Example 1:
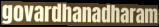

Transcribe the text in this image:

govardhanadharam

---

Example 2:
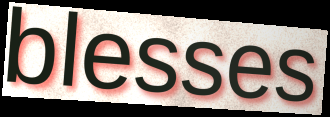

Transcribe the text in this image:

blesses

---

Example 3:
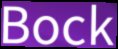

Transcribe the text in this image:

Bock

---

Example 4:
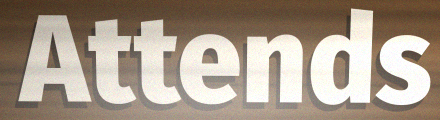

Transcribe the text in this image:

Attends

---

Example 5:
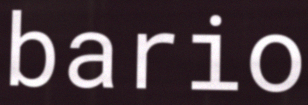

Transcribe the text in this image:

bario